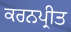
ਕਰਨਪ੍ਰੀਤ